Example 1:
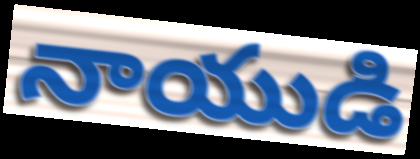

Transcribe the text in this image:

నాయుడి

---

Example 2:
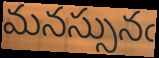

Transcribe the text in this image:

మనస్సునఁ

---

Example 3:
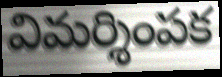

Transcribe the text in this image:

విమర్శింపక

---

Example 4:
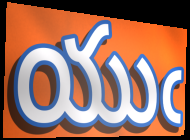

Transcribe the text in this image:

యుఁ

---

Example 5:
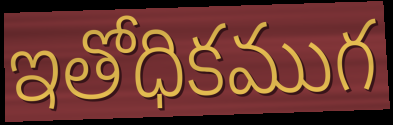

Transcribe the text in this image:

ఇతోధికముగ